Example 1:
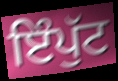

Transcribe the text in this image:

ਇੰਪੁੱਟ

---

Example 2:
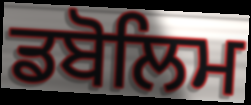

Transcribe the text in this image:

ਡਬੋਲਿਮ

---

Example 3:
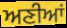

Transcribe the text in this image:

ਅਣੀਆਂ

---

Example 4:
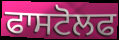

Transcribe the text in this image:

ਫਾਸਟੋਲਫ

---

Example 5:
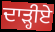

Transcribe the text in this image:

ਦਾੜ੍ਹੀਏ